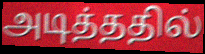
அடித்ததில்